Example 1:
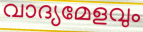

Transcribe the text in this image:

വാദ്യമേളവും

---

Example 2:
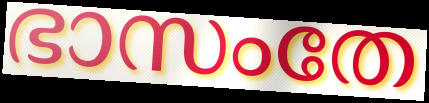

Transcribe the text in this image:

ഭാസംതേ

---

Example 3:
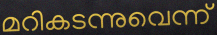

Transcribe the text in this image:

മറികടന്നുവെന്ന്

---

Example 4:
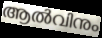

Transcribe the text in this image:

ആൽവിനും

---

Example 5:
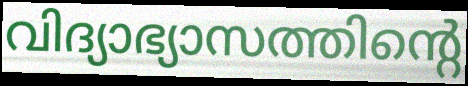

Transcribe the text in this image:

വിദ്യാഭ്യാസത്തിന്റെ